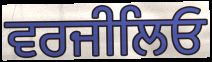
ਵਰਜੀਲਿਓ